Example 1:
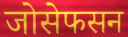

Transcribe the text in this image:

जोसेफसन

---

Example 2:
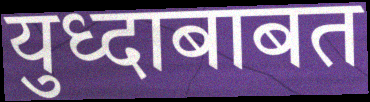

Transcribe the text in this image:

युध्दाबाबत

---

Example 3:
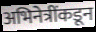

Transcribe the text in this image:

अभिनेत्रींकडून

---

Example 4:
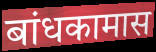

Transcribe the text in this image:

बांधकामास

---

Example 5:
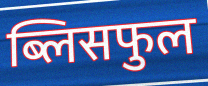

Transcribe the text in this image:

ब्लिसफुल